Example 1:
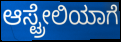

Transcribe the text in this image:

ಆಸ್ಟ್ರೇಲಿಯಾಗೆ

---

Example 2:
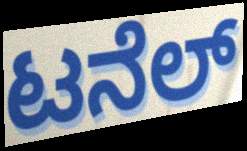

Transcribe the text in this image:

ಟನೆಲ್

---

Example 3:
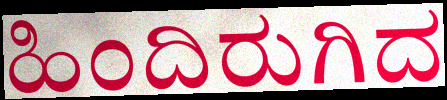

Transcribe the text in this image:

ಹಿಂದಿರುಗಿದ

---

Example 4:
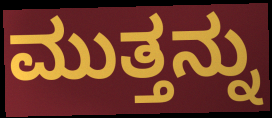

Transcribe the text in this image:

ಮುತ್ತನ್ನು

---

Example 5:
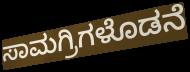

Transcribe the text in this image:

ಸಾಮಗ್ರಿಗಳೊಡನೆ